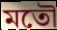
মতৌ